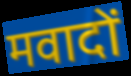
मवादों